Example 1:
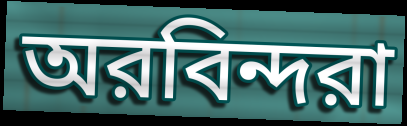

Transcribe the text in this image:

অরবিন্দরা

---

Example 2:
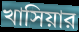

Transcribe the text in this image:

খাসিয়ার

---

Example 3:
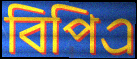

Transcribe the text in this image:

বিপিএ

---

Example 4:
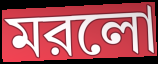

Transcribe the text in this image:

মরলো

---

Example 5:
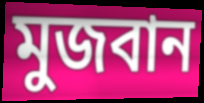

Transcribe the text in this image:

মুজবান